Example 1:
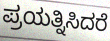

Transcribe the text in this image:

ಪ್ರಯತ್ನಿಸಿದರೆ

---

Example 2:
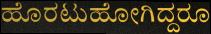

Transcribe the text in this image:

ಹೊರಟುಹೋಗಿದ್ದರೂ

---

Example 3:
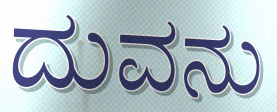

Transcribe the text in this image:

ದುವನು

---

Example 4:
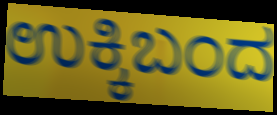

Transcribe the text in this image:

ಉಕ್ಕಿಬಂದ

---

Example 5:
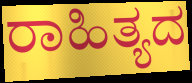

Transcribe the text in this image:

ರಾಹಿತ್ಯದ